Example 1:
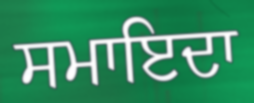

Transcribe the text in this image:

ਸਮਾਇਦਾ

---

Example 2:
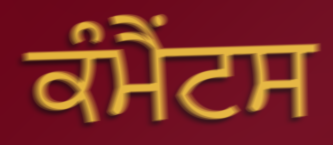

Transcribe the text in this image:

ਕੰਮੈਂਟਸ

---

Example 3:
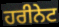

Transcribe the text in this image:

ਹਰੀਨੇਟ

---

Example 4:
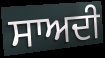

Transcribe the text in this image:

ਸਾਅਦੀ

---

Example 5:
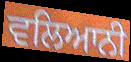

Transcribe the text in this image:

ਵਲਿਆਨੀ